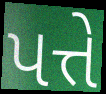
પત્તે